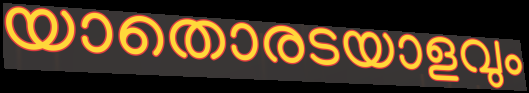
യാതൊരടയാളവും